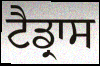
ਟੈਡ੍ਰਾਸ